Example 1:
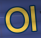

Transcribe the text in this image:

ଠା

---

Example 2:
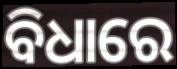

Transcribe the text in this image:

ବିଧାରେ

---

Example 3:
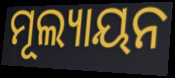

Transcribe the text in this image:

ମୂଲ୍ୟାୟନ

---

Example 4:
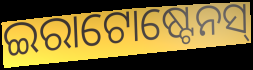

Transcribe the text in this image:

ଇରାଟୋଷ୍ଟେନସ୍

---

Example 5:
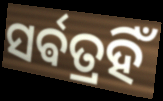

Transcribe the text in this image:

ସର୍ଵତ୍ରହିଁ